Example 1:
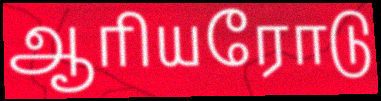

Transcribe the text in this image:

ஆரியரோடு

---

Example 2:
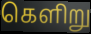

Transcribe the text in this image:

கெளிறு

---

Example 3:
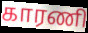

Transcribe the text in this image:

காரணி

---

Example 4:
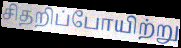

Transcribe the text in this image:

சிதறிப்போயிற்று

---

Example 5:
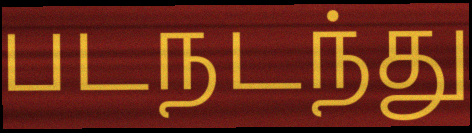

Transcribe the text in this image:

படநடந்து